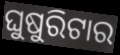
ଘୁଷୁରିଟାର